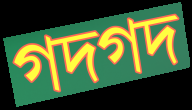
গদগদ